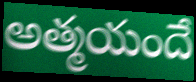
అత్మయందే